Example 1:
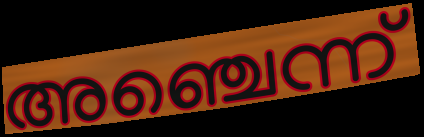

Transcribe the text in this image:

അഞ്ചെന്ന്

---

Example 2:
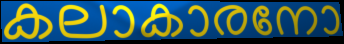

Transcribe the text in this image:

കലാകാരനോ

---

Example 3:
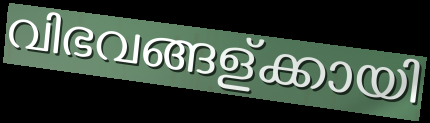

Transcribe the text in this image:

വിഭവങ്ങള്ക്കായി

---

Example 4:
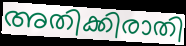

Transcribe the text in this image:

അതിക്കിരാതി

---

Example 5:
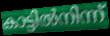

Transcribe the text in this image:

കാട്ടിൽനിന്ന്